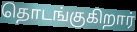
தொடங்குகிறார்